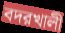
বদরখালী